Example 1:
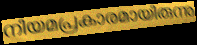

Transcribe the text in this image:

നിയമപ്രകാരമായിരുന്നു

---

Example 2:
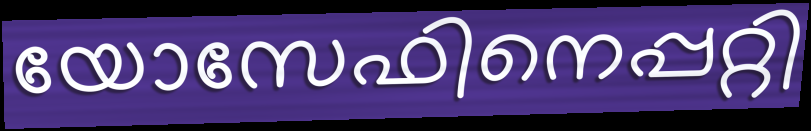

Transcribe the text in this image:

യോസേഫിനെപ്പറ്റി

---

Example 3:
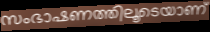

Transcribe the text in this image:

സംഭാഷണത്തിലൂടെയാണ്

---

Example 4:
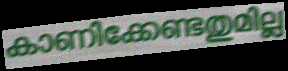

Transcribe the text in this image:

കാണിക്കേണ്ടതുമില്ല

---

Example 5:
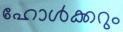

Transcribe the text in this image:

ഹോൾക്കറും